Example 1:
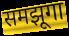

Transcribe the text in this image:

समझूगा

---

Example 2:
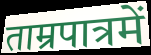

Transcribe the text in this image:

ताम्रपात्रमें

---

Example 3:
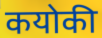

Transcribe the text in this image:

कयोकी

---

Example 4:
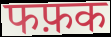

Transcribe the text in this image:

फफ़क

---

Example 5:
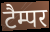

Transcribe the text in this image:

टैम्पर